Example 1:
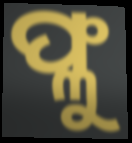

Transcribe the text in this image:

ଫ୍ଳୁ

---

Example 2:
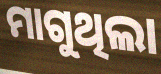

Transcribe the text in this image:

ମାଗୁଥିଲା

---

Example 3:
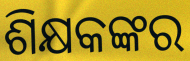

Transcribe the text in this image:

ଶିକ୍ଷକଙ୍କର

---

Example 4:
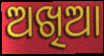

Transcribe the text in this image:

ଅଖିଆ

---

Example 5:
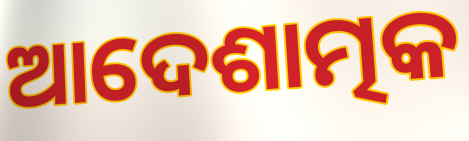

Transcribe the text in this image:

ଆଦେଶାତ୍ମକ